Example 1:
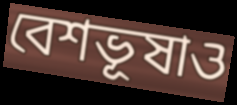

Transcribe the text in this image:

বেশভূষাও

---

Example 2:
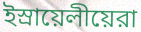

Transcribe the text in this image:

ইস্রায়েলীয়েরা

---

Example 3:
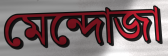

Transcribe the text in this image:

মেন্দোজা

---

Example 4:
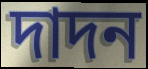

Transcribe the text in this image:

দাদন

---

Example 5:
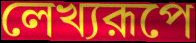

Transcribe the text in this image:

লেখ্যরূপে